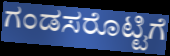
ಗಂಡಸರೊಟ್ಟಿಗೆ